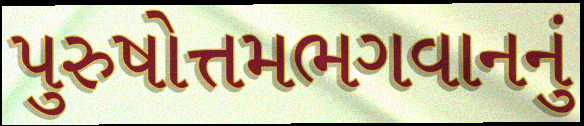
પુરુષોત્તમભગવાનનું